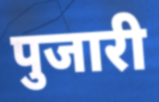
पुजारी